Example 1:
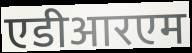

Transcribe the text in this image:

एडीआरएम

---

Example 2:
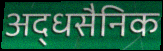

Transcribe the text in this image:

अद्धसैनिक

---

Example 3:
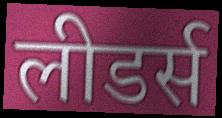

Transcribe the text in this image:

लीडर्स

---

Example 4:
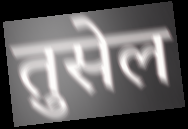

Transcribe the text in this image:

तुसेल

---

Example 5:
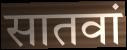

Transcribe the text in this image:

सातवां